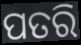
ପତରି